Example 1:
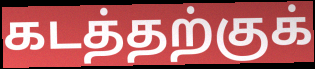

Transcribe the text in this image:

கடத்தற்குக்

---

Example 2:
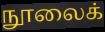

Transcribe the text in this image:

நூலைக்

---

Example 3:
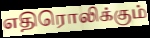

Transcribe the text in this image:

எதிரொலிக்கும்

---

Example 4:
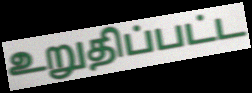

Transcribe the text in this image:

உறுதிப்பட்ட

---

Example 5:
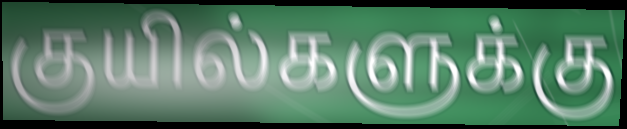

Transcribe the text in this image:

குயில்களுக்கு